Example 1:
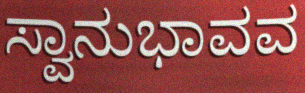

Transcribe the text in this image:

ಸ್ವಾನುಭಾವವ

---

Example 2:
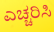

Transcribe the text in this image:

ಎಚ್ಚರಿಸಿ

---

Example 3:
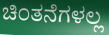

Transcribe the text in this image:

ಚಿಂತನೆಗಳಲ್ಲ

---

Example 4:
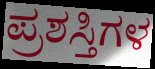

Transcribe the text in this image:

ಪ್ರಶಸ್ತಿಗಳ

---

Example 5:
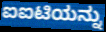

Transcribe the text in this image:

ಐಐಟಿಯನ್ನು